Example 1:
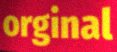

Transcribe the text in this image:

orginal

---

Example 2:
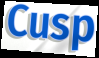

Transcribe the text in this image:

Cusp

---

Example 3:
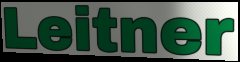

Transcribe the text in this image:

Leitner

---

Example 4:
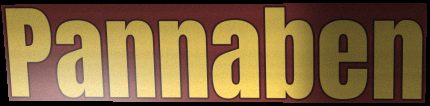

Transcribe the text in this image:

Pannaben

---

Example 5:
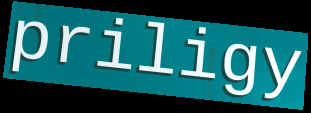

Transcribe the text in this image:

priligy